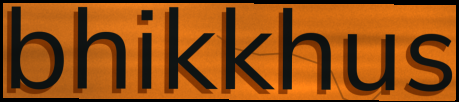
bhikkhus